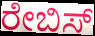
ರೇಬಿಸ್